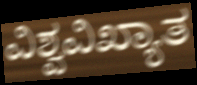
ವಿಶ್ವವಿಖ್ಯಾತ